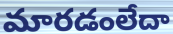
మారడంలేదా